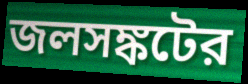
জলসঙ্কটের